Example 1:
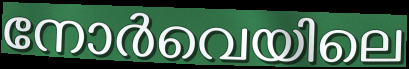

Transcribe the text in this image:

നോർവെയിലെ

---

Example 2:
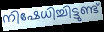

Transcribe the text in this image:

നിഷേധിച്ചിട്ടുണ്ട്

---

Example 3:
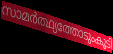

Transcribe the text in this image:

സാമർത്ഥ്യത്തോടുംകൂടി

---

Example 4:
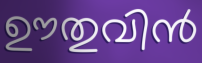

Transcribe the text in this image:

ഊതുവിൻ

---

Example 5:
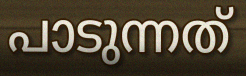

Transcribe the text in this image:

പാടുന്നത്